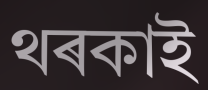
থৰকাই